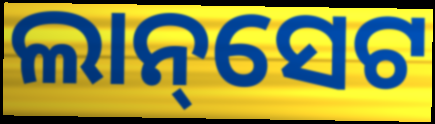
ଲାନ୍‌ସେଟ